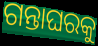
ଗନ୍ତାଘରକୁ